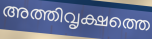
അത്തിവൃക്ഷത്തെ